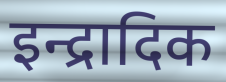
इन्द्रादिक